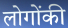
लोगोंकी